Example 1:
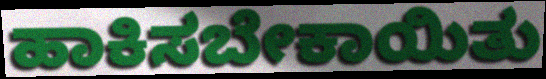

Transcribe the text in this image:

ಹಾಕಿಸಬೇಕಾಯಿತು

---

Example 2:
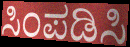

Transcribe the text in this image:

ಸಿಂಪಡಿಸಿ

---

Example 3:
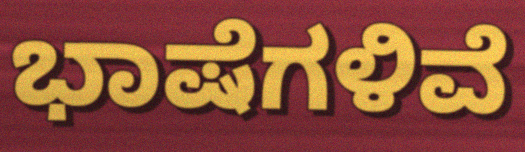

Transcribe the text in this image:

ಭಾಷೆಗಳಿವೆ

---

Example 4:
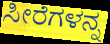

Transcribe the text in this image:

ಸೀರೆಗಳನ್ನ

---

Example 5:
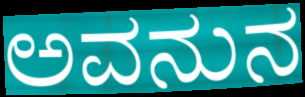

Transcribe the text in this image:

ಅವನುನ